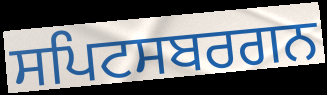
ਸਪਿਟਸਬਰਗਨ